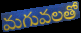
మగువలతో